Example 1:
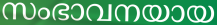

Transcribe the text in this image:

സംഭാവനയായ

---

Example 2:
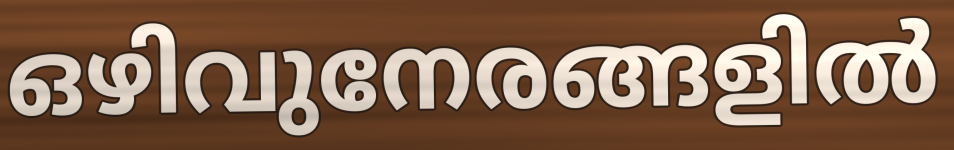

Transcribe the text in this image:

ഒഴിവുനേരങ്ങളിൽ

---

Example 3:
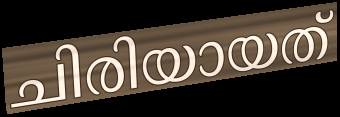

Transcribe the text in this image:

ചിരിയായത്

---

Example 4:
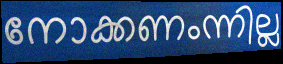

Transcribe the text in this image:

നോക്കണംന്നില്ല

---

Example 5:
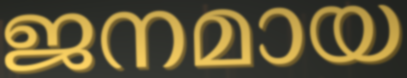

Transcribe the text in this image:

ജനമായ